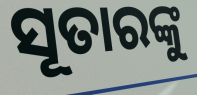
ସୂତାରଙ୍କୁ